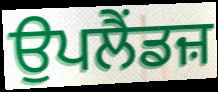
ਉਪਲੈਂਡਜ਼